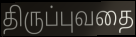
திருப்புவதை